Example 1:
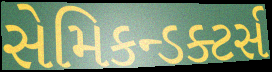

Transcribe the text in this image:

સેમિકન્ડક્ટર્સ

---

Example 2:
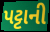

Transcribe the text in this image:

પટ્ટાની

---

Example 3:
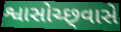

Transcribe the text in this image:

શ્વાસોચ્છ્‍વાસે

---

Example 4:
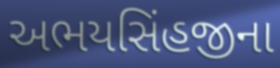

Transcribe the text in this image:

અભયસિંહજીના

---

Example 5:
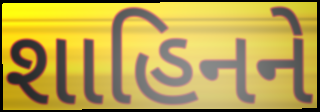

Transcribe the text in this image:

શાહિનને